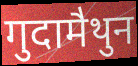
गुदामैथुन